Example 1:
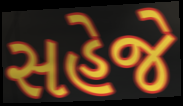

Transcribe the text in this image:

સહેજે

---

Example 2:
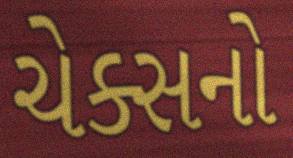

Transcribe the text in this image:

ચેક્સનો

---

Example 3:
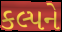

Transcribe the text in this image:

કલ્પને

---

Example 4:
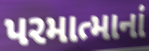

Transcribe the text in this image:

પરમાત્માનાં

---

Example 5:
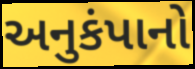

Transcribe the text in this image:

અનુકંપાનો